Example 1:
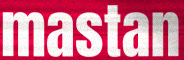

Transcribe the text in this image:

mastan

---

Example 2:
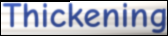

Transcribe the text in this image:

Thickening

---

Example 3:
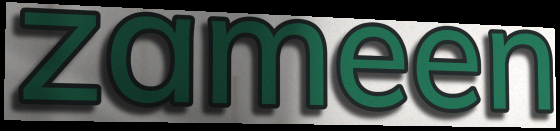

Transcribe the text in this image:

zameen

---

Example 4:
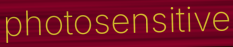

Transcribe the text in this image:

photosensitive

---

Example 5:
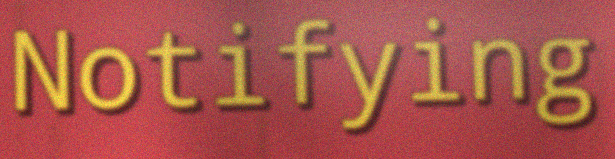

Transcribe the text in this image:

Notifying